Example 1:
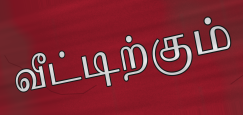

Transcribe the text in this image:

வீட்டிற்கும்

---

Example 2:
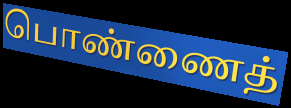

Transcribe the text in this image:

பொண்ணைத்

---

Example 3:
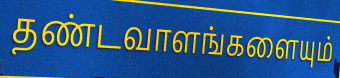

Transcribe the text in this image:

தண்டவாளங்களையும்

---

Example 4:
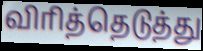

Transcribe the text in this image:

விரித்தெடுத்து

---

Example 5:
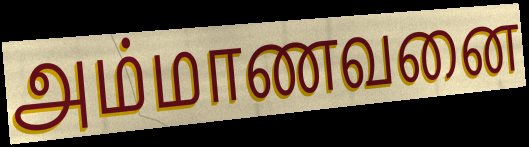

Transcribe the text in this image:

அம்மாணவனை